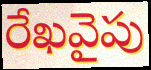
రేఖవైపు